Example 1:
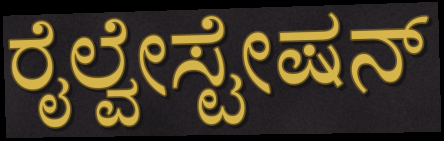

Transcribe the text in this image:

ರೈಲ್ವೇಸ್ಟೇಷನ್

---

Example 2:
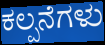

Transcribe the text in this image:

ಕಲ್ಪನೆಗಳು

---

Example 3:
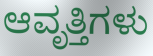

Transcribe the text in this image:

ಆವೃತ್ತಿಗಳು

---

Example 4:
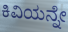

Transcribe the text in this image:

ಕಿವಿಯನ್ನೇ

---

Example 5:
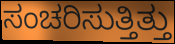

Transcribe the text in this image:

ಸಂಚರಿಸುತ್ತಿತ್ತು